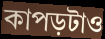
কাপড়টাও